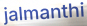
jalmanthi